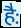
हैः